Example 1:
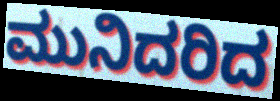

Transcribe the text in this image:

ಮುನಿದರಿದ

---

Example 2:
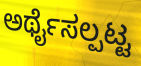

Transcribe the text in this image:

ಅರ್ಥೈಸಲ್ಪಟ್ಟ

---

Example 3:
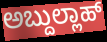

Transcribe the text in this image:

ಅಬ್ದುಲ್ಲಾಹ್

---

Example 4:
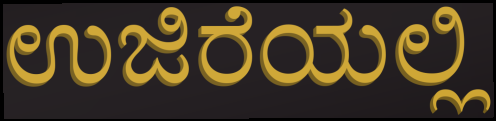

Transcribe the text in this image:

ಉಜಿರೆಯಲ್ಲಿ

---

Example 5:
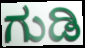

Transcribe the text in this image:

ಗುಡಿ